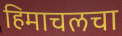
हिमाचलचा